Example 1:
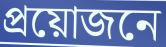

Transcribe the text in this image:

প্রয়োজনে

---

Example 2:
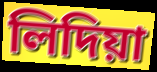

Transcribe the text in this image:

লিদিয়া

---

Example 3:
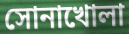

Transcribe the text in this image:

সোনাখোলা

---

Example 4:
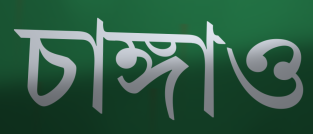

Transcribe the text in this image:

চাঙ্গাও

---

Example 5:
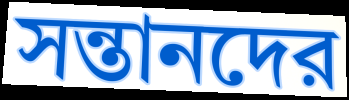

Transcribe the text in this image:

সন্তানদের